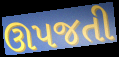
ઊપજતી